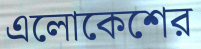
এলোকেশের